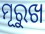
ମୂରୁଖ